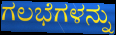
ಗಲಭೆಗಳನ್ನು